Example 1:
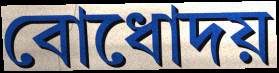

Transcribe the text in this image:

বোধোদয়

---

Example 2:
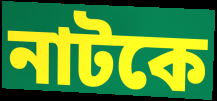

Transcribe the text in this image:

নাটকে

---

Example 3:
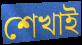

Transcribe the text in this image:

শেখাই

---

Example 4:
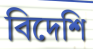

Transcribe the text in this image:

বিদেশি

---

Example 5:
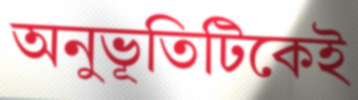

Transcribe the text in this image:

অনুভূতিটিকেই